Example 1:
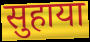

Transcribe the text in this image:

सुहाया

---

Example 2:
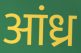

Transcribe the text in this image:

आंध्र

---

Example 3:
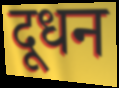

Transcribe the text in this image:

दूधन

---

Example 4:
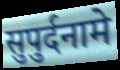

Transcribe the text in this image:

सुपुर्दनामे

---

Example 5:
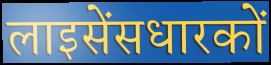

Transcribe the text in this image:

लाइसेंसधारकों